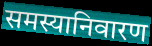
समस्यानिवारण